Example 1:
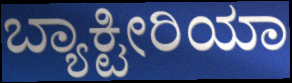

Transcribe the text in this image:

ಬ್ಯಾಕ್ಟೀರಿಯಾ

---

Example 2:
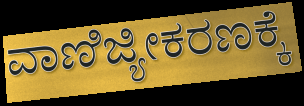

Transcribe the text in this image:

ವಾಣಿಜ್ಯೀಕರಣಕ್ಕೆ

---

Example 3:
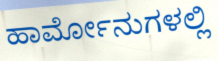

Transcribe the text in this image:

ಹಾರ್ಮೋನುಗಳಲ್ಲಿ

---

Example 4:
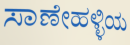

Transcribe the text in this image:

ಸಾಣೇಹಳ್ಳಿಯ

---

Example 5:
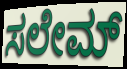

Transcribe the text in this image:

ಸಲೇಮ್